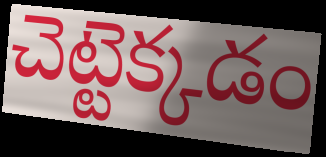
చెట్టెక్కడం